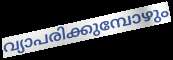
വ്യാപരിക്കുമ്പോഴും